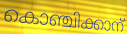
കൊഞ്ചിക്കാന്